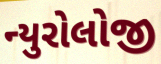
ન્યુરોલોજી